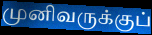
முனிவருக்குப்